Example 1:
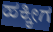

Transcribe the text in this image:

ಹಕ್ಕೀಗ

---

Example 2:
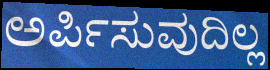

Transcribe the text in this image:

ಅರ್ಪಿಸುವುದಿಲ್ಲ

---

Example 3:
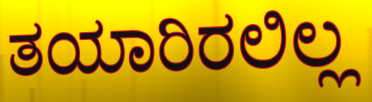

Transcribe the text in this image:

ತಯಾರಿರಲಿಲ್ಲ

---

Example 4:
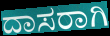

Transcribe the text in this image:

ದಾಸರಾಗಿ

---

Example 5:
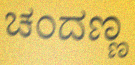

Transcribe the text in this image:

ಚಂದಣ್ಣ